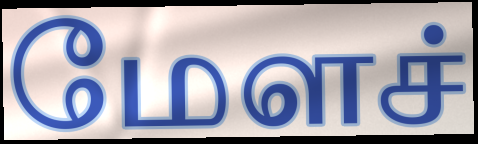
மேளச்